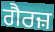
ਗੈਰਜ਼